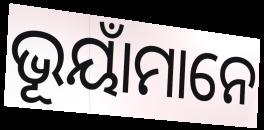
ଭୂୟାଁମାନେ